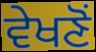
ਵੇਖਣੋਂ